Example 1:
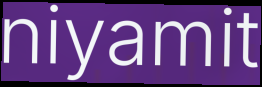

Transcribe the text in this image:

niyamit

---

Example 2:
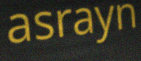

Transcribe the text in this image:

asrayn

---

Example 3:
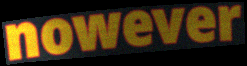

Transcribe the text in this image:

nowever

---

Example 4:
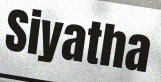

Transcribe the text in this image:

Siyatha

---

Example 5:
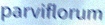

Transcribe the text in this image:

parviflorum